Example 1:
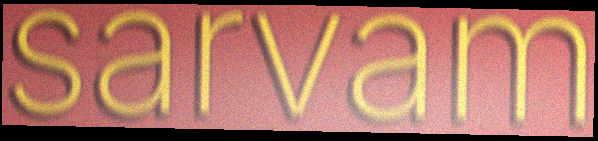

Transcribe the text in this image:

sarvam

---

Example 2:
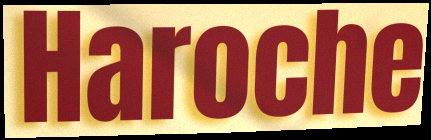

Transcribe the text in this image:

Haroche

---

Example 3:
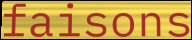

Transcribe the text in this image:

faisons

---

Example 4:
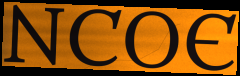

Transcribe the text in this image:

NCOE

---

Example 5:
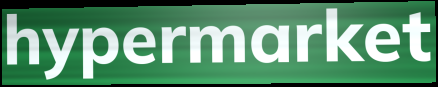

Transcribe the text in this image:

hypermarket